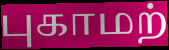
புகாமற்